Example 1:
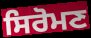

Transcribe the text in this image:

ਸਿਰੋਮਣ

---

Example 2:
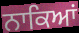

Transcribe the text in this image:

ਨਾਕਿਆਂ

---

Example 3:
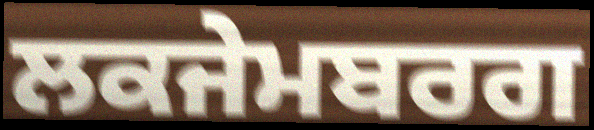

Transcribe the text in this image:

ਲਕਜੇਮਬਰਗ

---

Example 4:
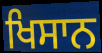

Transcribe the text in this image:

ਖਿਸਾਨ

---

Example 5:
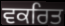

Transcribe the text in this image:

ਵਕਰਿਤ